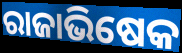
ରାଜାଭିଷେକ